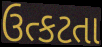
ઉત્કટતા